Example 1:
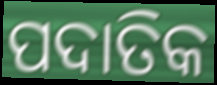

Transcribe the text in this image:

ପଦାତିକ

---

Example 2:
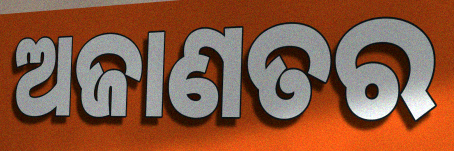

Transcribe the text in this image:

ଅଜାଣତର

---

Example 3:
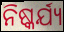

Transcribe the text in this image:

ନିଷ୍କର୍ଯ୍ୟ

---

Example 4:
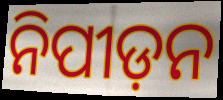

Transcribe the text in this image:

ନିପୀଡ଼ନ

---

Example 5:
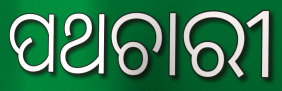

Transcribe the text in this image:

ପଥଚାରୀ